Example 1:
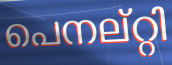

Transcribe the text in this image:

പെനല്റ്റി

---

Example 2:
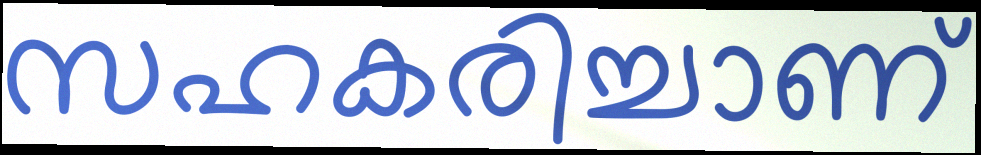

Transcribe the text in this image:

സഹകരിച്ചാണ്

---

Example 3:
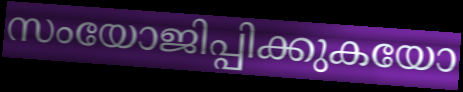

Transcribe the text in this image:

സംയോജിപ്പിക്കുകയോ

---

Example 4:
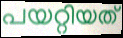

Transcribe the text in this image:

പയറ്റിയത്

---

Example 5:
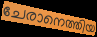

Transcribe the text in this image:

ചേരാനെത്തിയ